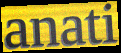
anati